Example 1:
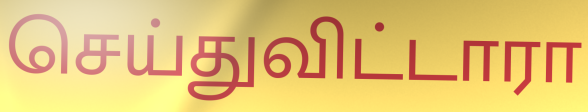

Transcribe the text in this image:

செய்துவிட்டாரா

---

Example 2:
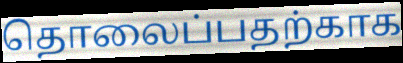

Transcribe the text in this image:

தொலைப்பதற்காக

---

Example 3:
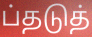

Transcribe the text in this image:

ப்தடுத்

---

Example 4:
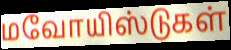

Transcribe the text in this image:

மவோயிஸ்டுகள்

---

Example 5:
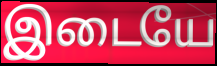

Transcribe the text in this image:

இடையே